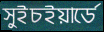
সুইচইয়ার্ডে